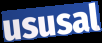
ususal